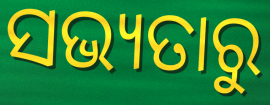
ସଭ୍ୟତାରୁ